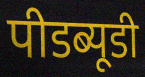
पीडब्यूडी